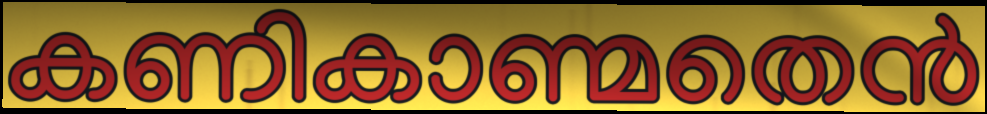
കണികാണ്മതെൻ